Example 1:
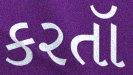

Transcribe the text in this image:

કરતૉ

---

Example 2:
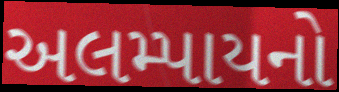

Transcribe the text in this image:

અલમ્પાયનો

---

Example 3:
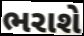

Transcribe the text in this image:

ભરાશે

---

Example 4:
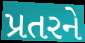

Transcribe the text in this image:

પ્રતરને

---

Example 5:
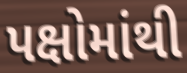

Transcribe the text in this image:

પક્ષોમાંથી